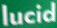
lucid